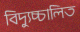
বিদ্যুচ্চালিত